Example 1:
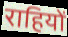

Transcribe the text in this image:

राहियों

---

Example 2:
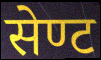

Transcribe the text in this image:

सेण्ट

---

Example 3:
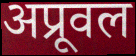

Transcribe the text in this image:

अप्रूवल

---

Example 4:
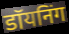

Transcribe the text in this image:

डॉयनिंग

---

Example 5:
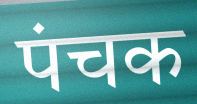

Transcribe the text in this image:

पंचक